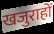
खजुराहों